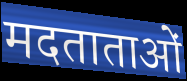
मदताताओं